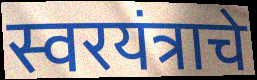
स्वरयंत्राचे